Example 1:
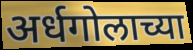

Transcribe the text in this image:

अर्धगोलाच्या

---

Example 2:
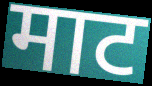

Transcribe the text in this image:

माट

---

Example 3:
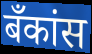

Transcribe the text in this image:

बँकांस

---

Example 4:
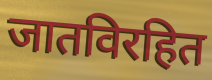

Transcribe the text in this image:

जातविरहित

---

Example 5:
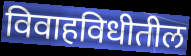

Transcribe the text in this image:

विवाहविधीतील